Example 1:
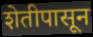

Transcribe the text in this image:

शेतीपासून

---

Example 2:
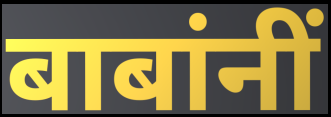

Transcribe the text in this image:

बाबांनीं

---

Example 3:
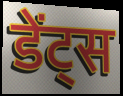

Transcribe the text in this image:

डेंट्स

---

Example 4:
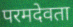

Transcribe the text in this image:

परमदेवता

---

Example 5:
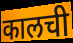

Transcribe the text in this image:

कालची